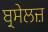
ਬ੍ਰਸੇਲਜ਼